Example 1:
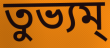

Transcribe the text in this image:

তুভ্যম্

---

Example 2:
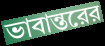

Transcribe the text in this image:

ভাবান্তরের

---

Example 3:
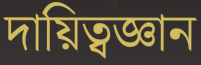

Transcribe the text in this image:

দায়িত্বজ্ঞান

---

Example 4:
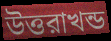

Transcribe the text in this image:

উত্তরাখন্ড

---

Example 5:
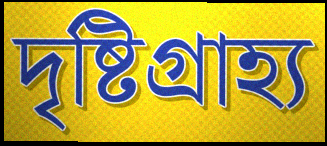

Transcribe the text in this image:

দৃষ্টিগ্রাহ্য